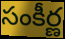
సంకీర్ణ